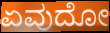
ಏವುದೋ